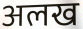
अलख